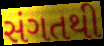
સંગતથી